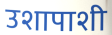
उशापाशी